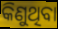
କିଣୁଥିବା